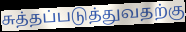
சுத்தப்படுத்துவதற்கு